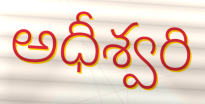
అధీశ్వరి